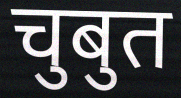
चुबुत